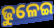
ଢୁଳେଇ